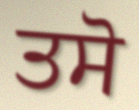
ਤਸੋ